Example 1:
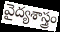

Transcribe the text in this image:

వైద్యశాస్త్రం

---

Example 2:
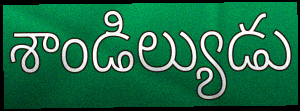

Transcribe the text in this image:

శాండిల్యుడు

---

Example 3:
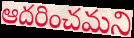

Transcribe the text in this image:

ఆదరించమని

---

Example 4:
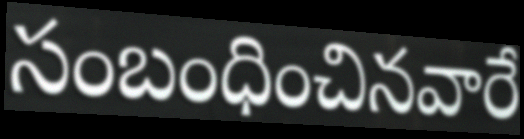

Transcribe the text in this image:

సంబంధించినవారే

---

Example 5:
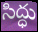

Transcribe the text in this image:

సిద్ధు